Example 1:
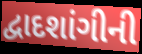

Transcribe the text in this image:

દ્વાદશાંગીની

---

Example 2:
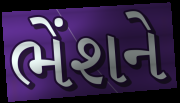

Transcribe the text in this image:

ભેંશને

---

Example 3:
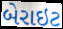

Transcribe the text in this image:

બેરાઇટ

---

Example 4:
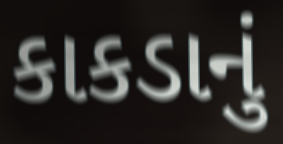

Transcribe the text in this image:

કાકડાનું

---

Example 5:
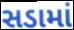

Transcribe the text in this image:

સડામાં